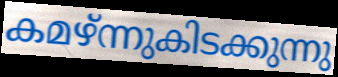
കമഴ്ന്നുകിടക്കുന്നു